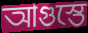
আগুস্তে